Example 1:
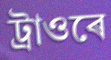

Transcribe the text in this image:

ট্ৰাওৰে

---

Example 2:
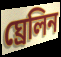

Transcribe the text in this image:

ঘ্ৰেলিন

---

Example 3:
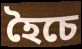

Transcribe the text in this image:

হৈচে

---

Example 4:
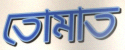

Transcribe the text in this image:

তোমাত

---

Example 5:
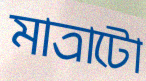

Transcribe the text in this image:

মাত্ৰাটো